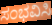
ಸಂಭವಿಸಿ